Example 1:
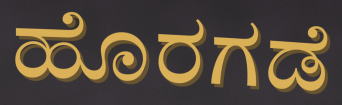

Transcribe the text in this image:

ಹೊರಗಡೆ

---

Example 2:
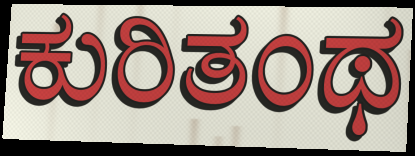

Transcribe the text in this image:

ಕುರಿತಂಥ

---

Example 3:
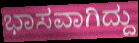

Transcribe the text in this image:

ಭಾಸವಾಗಿದ್ದು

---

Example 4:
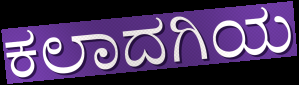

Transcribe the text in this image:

ಕಲಾದಗಿಯ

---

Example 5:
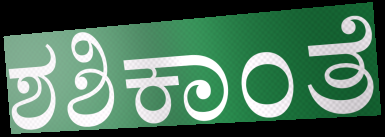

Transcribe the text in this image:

ಶಶಿಕಾಂತೆ